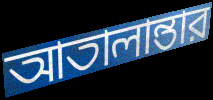
আতালান্তার